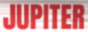
JUPITER